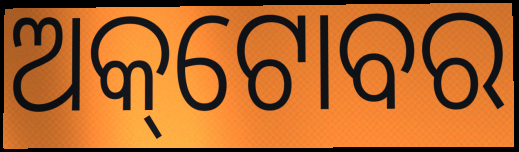
ଅକ୍‌ଟୋବର